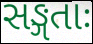
સઙ્ગતાઃ